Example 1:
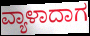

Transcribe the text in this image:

ವ್ಯಾಳಾದಾಗ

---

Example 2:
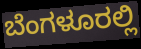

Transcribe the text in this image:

ಬೆಂಗಳೂರಲ್ಲಿ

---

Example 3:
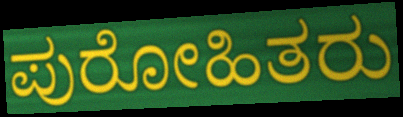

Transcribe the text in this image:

ಪುರೋಹಿತರು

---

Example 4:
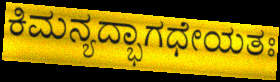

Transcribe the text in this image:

ಕಿಮನ್ಯದ್ಭಾಗಧೇಯತಃ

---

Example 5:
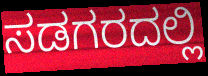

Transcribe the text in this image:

ಸಡಗರದಲ್ಲಿ